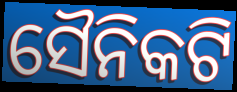
ସୈନିକଟି